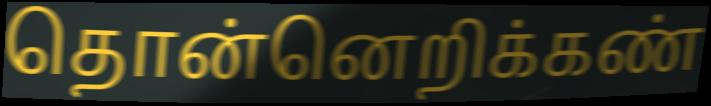
தொன்னெறிக்கண்